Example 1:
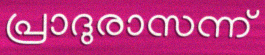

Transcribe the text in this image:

പ്രാദുരാസന്ന്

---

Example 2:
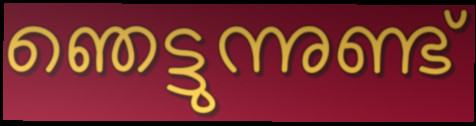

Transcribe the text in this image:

ഞെട്ടുന്നുണ്ട്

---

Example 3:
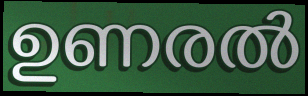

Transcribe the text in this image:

ഉണരൽ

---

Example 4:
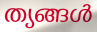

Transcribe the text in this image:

ത്യങ്ങൾ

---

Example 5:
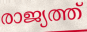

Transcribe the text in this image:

രാജ്യത്ത്